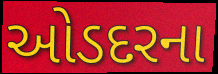
ઓડદરના